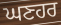
ਘਣਹਰ